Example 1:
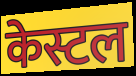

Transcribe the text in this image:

केस्टल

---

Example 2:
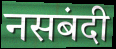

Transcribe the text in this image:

नसबंदी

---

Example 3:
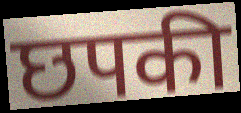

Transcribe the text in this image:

छपकी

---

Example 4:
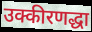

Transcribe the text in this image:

उक्कीरणद्धा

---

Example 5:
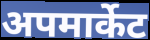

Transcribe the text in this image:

अपमार्केट